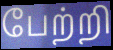
பேற்றி